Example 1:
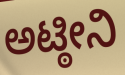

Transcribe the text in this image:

ಅಟ್ಠೀನಿ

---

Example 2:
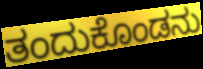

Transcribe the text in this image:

ತಂದುಕೊಂಡನು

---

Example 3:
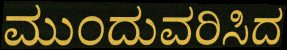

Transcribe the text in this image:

ಮುಂದುವರಿಸಿದ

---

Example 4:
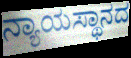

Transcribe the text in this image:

ನ್ಯಾಯಸ್ಥಾನದ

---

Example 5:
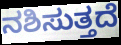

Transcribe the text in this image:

ನಶಿಸುತ್ತದೆ